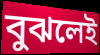
বুঝলেই